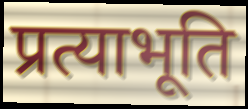
प्रत्याभूति